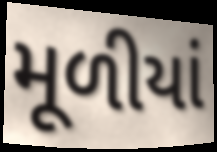
મૂળીયાં